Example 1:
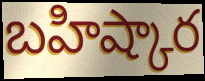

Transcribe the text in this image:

బహిష్కార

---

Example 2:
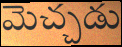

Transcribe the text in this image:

మెచ్చడు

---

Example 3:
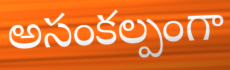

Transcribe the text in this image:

అసంకల్పంగా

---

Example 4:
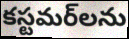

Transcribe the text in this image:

కస్టమర్‌లను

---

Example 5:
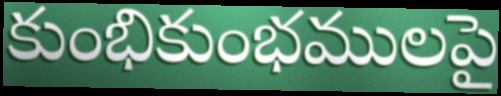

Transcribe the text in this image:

కుంభికుంభములపై